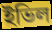
ইভিল